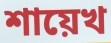
শায়েখ